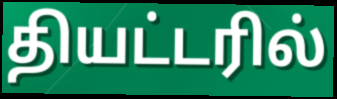
தியட்டரில்